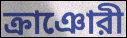
ক্রাঞোরী